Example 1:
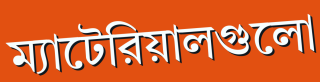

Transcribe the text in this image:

ম্যাটেরিয়ালগুলো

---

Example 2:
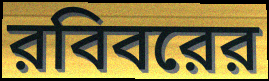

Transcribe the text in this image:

রবিবরের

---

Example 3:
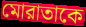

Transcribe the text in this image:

মোরাতাকে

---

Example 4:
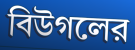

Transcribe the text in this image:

বিউগলের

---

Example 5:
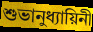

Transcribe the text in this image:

শুভানুধ্যায়িনী